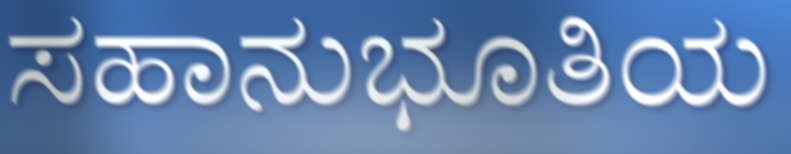
ಸಹಾನುಭೂತಿಯ